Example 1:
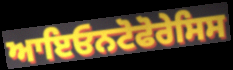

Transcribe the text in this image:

ਆਇਓਨਟੋਫੋਰੇਸਿਸ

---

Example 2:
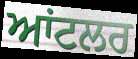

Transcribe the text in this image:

ਆਂਟਲਰ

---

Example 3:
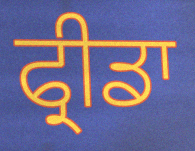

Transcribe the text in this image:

ਫ੍ਰੀਡਾ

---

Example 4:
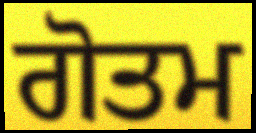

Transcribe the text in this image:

ਗੋਤਮ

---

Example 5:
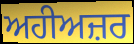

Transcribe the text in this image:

ਅਹੀਅਜ਼ਰ